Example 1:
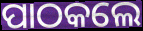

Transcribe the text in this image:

ପାଠକଲେ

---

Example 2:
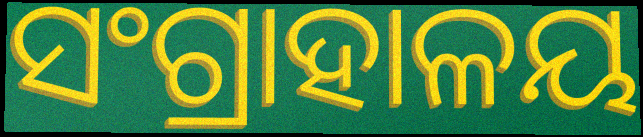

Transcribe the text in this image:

ସଂଗ୍ରାହାଳୟ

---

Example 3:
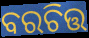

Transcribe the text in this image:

ବରଚିତ୍ତ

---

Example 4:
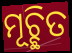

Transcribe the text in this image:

ମୂଚ୍ଛିତ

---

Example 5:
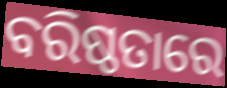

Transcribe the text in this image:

ବରିଷ୍ଠତାରେ